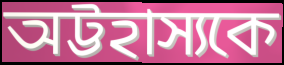
অট্টহাস্যকে